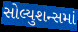
સોલ્યુશન્સમાં